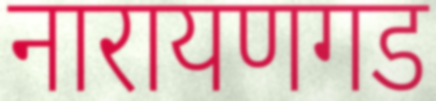
नारायणगड